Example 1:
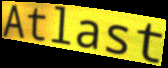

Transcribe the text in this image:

Atlast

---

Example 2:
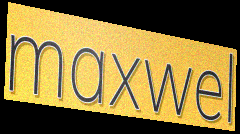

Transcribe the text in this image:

maxwel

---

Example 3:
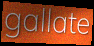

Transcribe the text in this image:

gallate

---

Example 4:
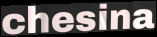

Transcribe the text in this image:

chesina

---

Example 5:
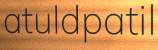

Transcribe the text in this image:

atuldpatil